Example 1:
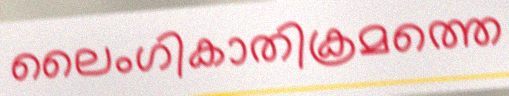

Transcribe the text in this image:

ലൈംഗികാതിക്രമത്തെ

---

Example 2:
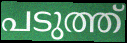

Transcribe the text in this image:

പടുത്ത്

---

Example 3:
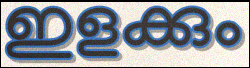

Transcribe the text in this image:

ഇളക്കും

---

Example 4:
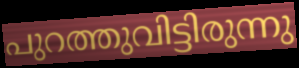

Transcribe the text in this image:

പുറത്തുവിട്ടിരുന്നു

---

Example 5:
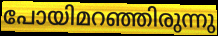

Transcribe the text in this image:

പോയിമറഞ്ഞിരുന്നു